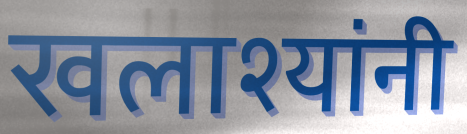
खलाश्यांनी